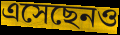
এসেছেনও